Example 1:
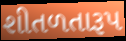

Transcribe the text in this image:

શીતળતારૂપ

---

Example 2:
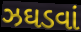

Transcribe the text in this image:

ઝઘડવાં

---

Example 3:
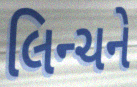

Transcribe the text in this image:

લિન્ચને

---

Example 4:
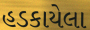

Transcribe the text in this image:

હડકાયેલા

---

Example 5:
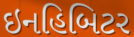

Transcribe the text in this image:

ઇનહિબિટર